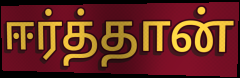
ஈர்த்தான்